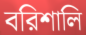
বরিশালি